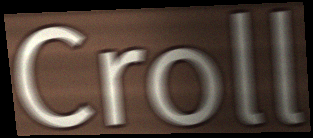
Croll